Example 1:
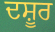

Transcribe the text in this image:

ਦਸ਼ੂਰ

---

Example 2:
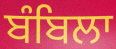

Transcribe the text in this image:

ਬੰਬਿਲਾ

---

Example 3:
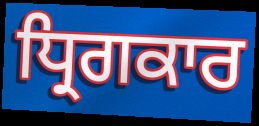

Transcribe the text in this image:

ਧ੍ਰਿਗਕਾਰ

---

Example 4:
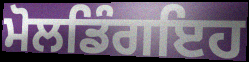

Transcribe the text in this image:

ਮੋਲਡਿੰਗਇਹ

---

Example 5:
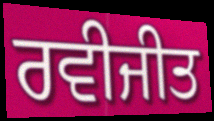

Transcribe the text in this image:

ਰਵੀਜੀਤ